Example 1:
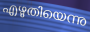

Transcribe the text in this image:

എഴുതിയെന്നു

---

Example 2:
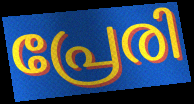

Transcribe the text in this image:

പ്രേരി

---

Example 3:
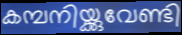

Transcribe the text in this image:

കമ്പനിയ്ക്കുവേണ്ടി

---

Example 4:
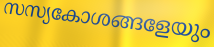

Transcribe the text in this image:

സസ്യകോശങ്ങളേയും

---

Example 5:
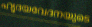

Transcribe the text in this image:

ഹൃദയവേദനയുടെ